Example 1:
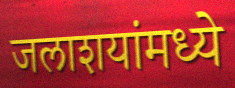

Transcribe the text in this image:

जलाशयांमध्ये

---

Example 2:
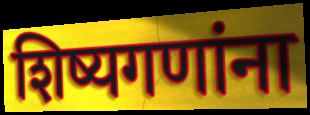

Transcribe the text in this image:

शिष्यगणांना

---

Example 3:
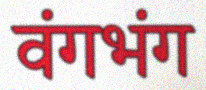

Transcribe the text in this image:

वंगभंग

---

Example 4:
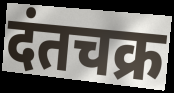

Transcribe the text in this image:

दंतचक्र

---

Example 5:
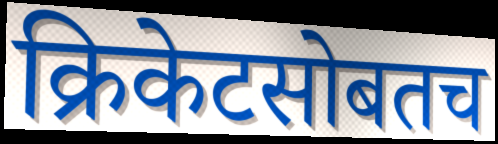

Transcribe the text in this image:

क्रिकेटसोबतच